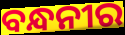
ବନ୍ଧନୀର